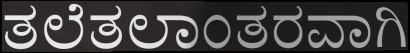
ತಲೆತಲಾಂತರವಾಗಿ